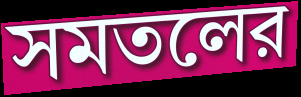
সমতলের